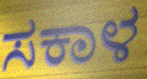
ಸಕಾಳ